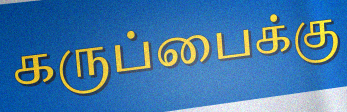
கருப்பைக்கு